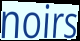
noirs